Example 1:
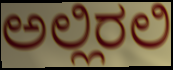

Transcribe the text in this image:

ಅಲ್ಲಿರಲಿ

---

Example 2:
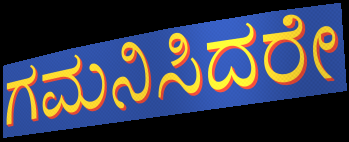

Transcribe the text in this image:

ಗಮನಿಸಿದರೇ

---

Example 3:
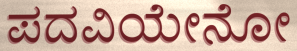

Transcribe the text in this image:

ಪದವಿಯೇನೋ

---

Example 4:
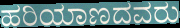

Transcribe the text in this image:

ಹರಿಯಾಣದವರು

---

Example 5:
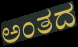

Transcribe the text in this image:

ಅಂತದ